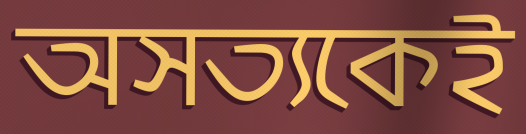
অসত্যকেই